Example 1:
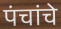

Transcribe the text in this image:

पंचांचे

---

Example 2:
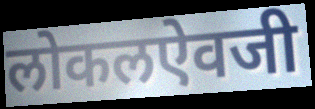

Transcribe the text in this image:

लोकलऐवजी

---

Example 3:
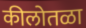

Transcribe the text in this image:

कीलोतळा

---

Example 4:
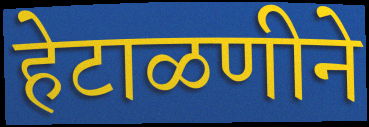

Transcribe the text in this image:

हेटाळणीने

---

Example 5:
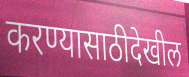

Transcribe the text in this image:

करण्यासाठीदेखील